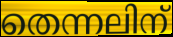
തെന്നലിന്